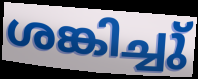
ശങ്കിച്ചു്